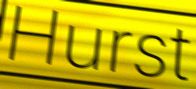
Hurst